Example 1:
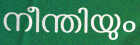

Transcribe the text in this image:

നീന്തിയും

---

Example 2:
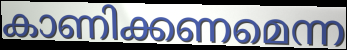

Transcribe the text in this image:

കാണിക്കണമെന്ന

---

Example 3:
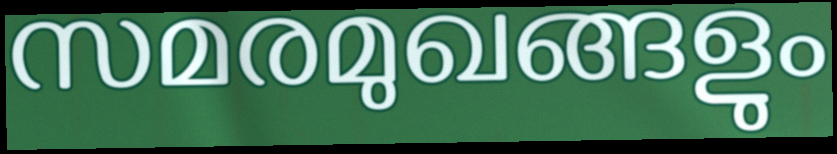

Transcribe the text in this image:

സമരമുഖങ്ങളും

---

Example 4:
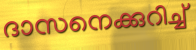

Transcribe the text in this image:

ദാസനെക്കുറിച്ച്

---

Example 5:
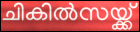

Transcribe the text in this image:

ചികിൽസയ്ക്ക്